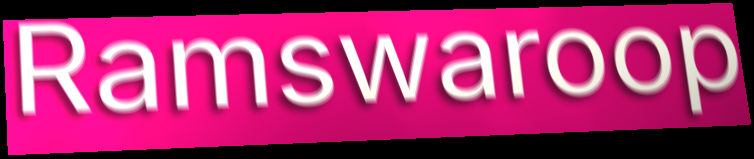
Ramswaroop